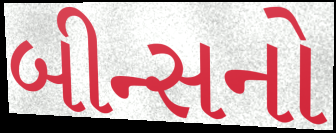
બીન્સનો